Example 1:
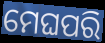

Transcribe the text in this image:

ମେଘପରି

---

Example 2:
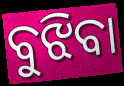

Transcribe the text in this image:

ବୁଝିବା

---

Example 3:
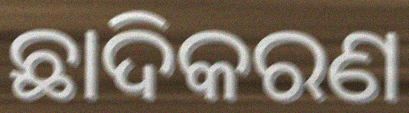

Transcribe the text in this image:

ଛାଦିକରଣ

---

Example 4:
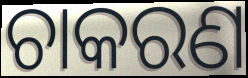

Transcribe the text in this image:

ଚାକରଣ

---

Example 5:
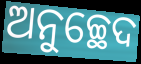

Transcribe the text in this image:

ଅନୁଚ୍ଛେଦ